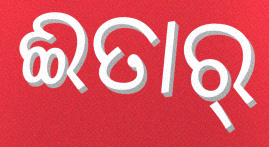
ଈତାର୍